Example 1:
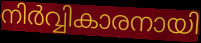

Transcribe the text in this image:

നിർവ്വികാരനായി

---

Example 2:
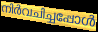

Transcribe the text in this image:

നിർവചിച്ചപ്പോൾ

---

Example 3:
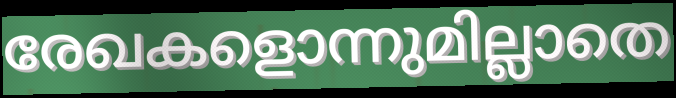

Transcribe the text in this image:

രേഖകളൊന്നുമില്ലാതെ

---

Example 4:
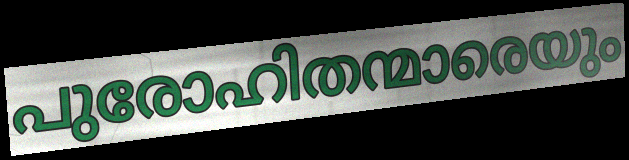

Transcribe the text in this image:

പുരോഹിതന്മാരെയും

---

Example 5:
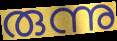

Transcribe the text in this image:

രുന്നു